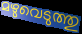
മഴുവെടുത്തു